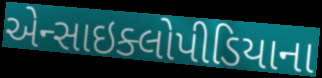
એન્સાઇક્લોપીડિયાના